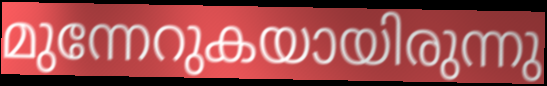
മുന്നേറുകയായിരുന്നു